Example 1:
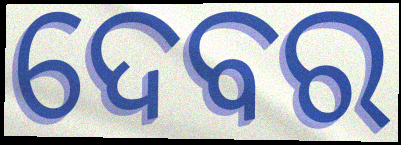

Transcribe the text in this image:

ଦେବର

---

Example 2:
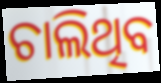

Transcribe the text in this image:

ଚାଲିଥିବ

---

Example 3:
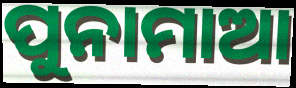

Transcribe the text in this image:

ପୁନାମାଆ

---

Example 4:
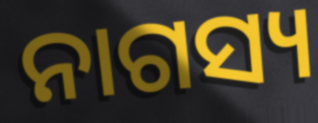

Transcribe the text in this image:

ନାଗସ୍ୟ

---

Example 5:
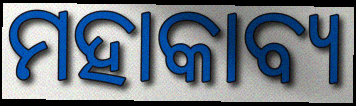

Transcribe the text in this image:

ମହାକାବ୍ୟ